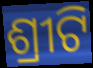
ଶ୍ରୀଟି